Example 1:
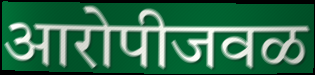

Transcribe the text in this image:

आरोपीजवळ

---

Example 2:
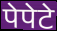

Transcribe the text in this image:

पेपेटे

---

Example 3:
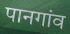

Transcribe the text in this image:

पानगांव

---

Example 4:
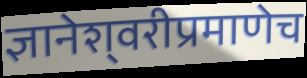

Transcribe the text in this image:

ज्ञानेश्वरीप्रमाणेच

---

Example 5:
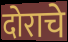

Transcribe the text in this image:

दोराचे